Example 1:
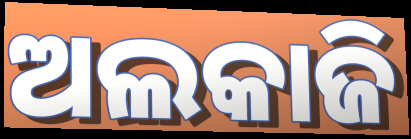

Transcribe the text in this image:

ଅଲକାଜି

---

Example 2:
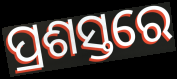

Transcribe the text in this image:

ପ୍ରଶସ୍ତରେ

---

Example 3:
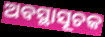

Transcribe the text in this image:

ଅବସ୍ଥାସୂଚକ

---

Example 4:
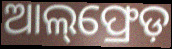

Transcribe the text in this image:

ଆଲ୍‌ଫ୍ରେଡ଼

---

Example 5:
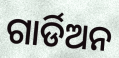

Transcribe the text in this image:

ଗାର୍ଡିଅନ